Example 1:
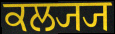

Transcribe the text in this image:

ਕਲ੍ਯ੍ਯ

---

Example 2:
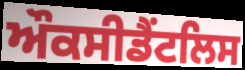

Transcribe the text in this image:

ਔਕਸੀਡੈਂਟਲਿਸ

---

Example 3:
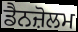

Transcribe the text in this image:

ਡੈਨਜ਼ੋਲਮ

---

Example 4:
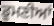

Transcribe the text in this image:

ਡੂਮਣੀਆਂ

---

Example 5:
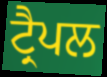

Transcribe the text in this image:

ਟ੍ਰੈਪਲ